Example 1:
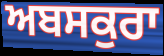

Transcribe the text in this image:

ਅਬਸਕੁਰਾ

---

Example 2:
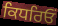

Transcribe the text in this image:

ਕਿਧਰਿਓਂ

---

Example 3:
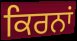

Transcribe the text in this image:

ਕਿਰਨਾਂ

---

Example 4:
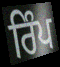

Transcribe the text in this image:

ਰਿੰਪ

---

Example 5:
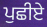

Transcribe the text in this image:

ਪੁਛੀਏ